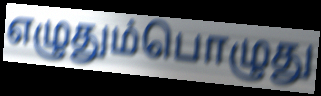
எழுதும்பொழுது